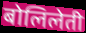
बोलिलेती